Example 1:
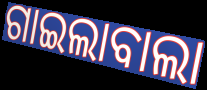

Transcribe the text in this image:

ଗାଇଲାବାଲା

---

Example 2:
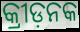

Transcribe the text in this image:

କ୍ରୀଡ଼ନକ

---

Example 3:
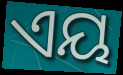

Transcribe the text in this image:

ଏୟ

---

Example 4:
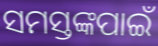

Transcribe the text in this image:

ସମସ୍ତଙ୍କପାଇଁ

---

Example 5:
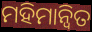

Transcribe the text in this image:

ମହିମାନ୍ୱିତ